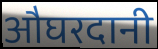
औघरदानी